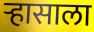
ऱ्हासाला